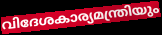
വിദേശകാര്യമന്ത്രിയും